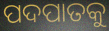
ପଦପାତକୁ